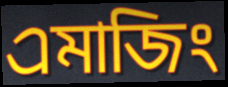
এমাজিং